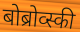
बोब्रोव्स्की